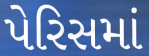
પેરિસમાં